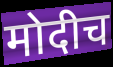
मोदीच